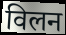
विलन